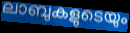
ലാബുകളുടെയും